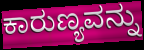
ಕಾರುಣ್ಯವನ್ನು